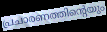
പ്രചാരണത്തിന്റെയും